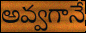
అవ్వగానే